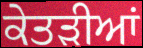
ਕੇਤੜੀਆਂ